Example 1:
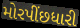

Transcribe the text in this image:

મોરપીંછધારી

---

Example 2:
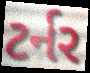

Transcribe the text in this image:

ટર્નર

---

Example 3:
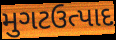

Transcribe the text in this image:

મુગટઉત્પાદ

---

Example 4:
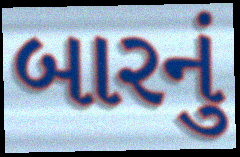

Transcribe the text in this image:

બારનું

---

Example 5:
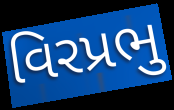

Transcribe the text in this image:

વિરપ્રભુ